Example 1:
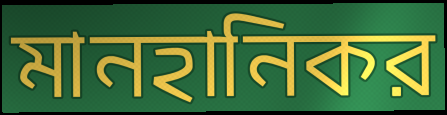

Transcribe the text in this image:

মানহানিকর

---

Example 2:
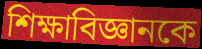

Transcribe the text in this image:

শিক্ষাবিজ্ঞানকে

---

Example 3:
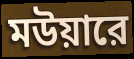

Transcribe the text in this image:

মউয়ারে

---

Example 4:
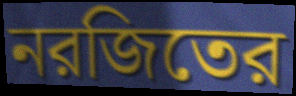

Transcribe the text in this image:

নরজিতের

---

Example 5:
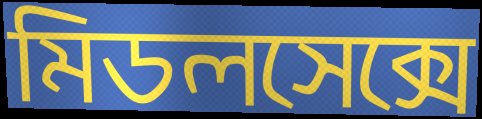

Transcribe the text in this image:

মিডলসেক্সে